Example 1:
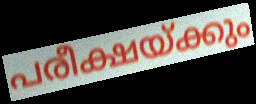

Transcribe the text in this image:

പരീക്ഷയ്ക്കും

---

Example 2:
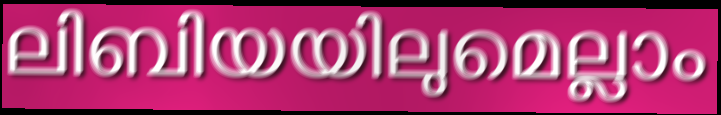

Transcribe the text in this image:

ലിബിയയിലുമെല്ലാം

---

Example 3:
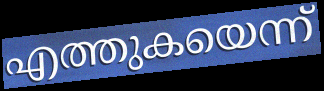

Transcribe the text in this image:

എത്തുകയെന്ന്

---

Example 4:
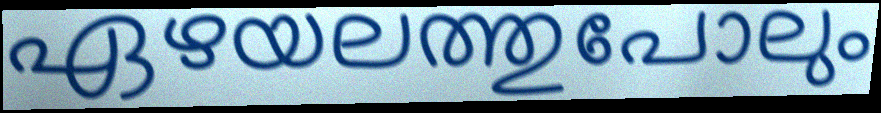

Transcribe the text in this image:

ഏഴയലത്തുപോലും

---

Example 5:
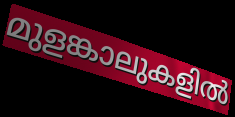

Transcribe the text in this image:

മുളങ്കാലുകളിൽ